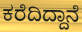
ಕರೆದಿದ್ದಾನೆ